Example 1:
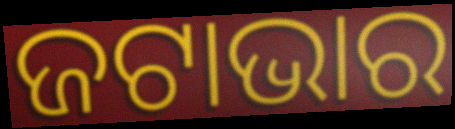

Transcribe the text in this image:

ଜଟାଭାର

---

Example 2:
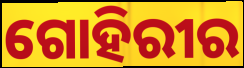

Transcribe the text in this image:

ଗୋହିରୀର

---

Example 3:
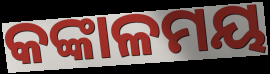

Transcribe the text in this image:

କଙ୍କାଳମୟ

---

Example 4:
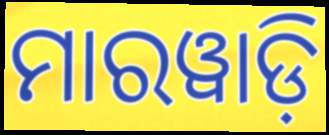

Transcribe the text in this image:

ମାରୱାଡ଼ି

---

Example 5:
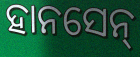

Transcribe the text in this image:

ହାନସେନ୍